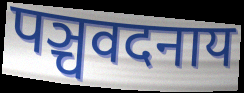
पञ्चवदनाय